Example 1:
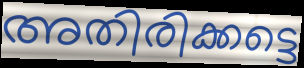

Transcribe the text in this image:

അതിരിക്കട്ടെ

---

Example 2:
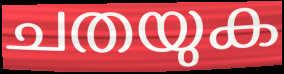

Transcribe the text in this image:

ചതയുക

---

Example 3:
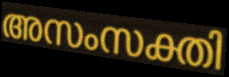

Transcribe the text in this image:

അസംസക്തി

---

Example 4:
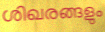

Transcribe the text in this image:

ശിഖരങ്ങളും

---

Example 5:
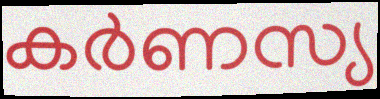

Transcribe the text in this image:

കർണസ്യ